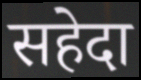
सहेदा